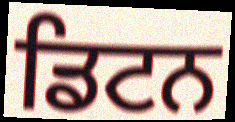
ਡਿਟਨ